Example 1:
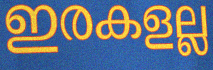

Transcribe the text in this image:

ഇരകളല്ല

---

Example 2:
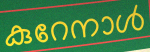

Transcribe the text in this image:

കുറേനാൾ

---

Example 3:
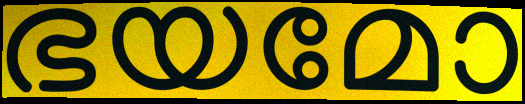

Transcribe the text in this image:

ഭയമോ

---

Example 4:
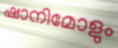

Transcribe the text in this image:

ഷാനിമോളും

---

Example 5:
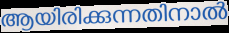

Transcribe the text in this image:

ആയിരിക്കുന്നതിനാൽ